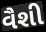
વૈશી